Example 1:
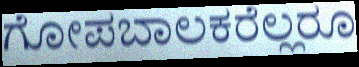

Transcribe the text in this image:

ಗೋಪಬಾಲಕರೆಲ್ಲರೂ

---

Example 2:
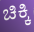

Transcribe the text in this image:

ಚಿಕ್ಕಿ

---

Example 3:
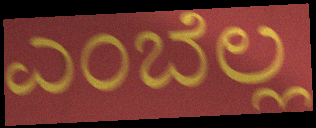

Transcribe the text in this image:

ಎಂಬೆಲ್ಲ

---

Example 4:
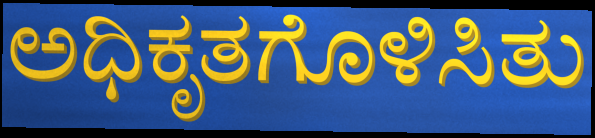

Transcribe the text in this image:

ಅಧಿಕೃತಗೊಳಿಸಿತು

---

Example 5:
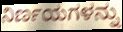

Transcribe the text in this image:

ನಿರ್ಣಯಗಳನ್ನು